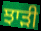
ਝਾੜੀ